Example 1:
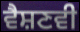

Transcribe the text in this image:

ਵੈਸ਼ਣਵੀ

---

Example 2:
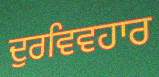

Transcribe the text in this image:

ਦੁਰਵਿਵਹਾਰ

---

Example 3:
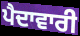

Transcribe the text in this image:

ਪੈਦਾਵਾਰੀ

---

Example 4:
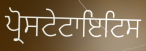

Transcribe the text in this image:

ਪ੍ਰੋਸਟੇਟਾਇਟਿਸ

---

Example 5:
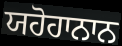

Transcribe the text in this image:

ਯਹੋਹਾਨਾਨ